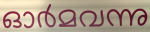
ഓർമവന്നു